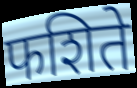
फशिते